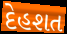
દેહશત